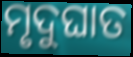
ମୃଦୁଘାତ